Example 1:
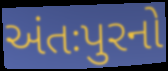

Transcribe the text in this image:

અંતઃપુરનો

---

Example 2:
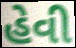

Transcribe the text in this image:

હેવી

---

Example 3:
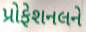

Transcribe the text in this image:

પ્રોફેશનલને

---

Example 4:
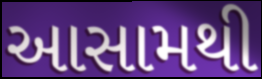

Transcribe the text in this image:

આસામથી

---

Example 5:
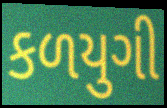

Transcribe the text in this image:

કળયુગી